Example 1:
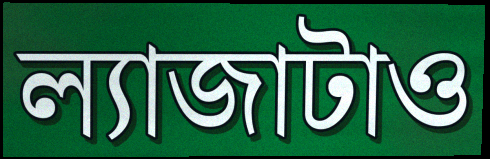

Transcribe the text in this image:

ল্যাজাটাও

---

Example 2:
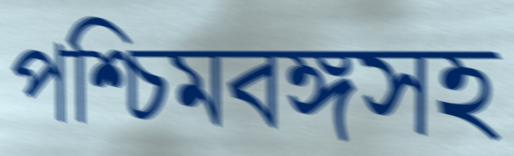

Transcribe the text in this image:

পশ্চিমবঙ্গসহ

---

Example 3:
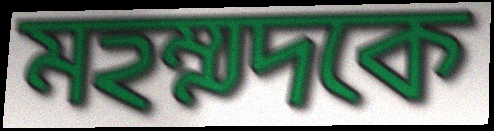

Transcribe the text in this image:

মহম্মদকে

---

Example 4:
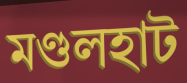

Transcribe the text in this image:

মণ্ডলহাট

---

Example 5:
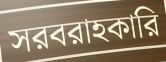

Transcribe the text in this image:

সরবরাহকারি